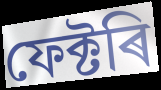
ফেক্টৰি